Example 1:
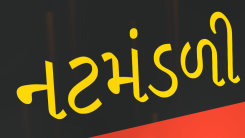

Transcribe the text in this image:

નટમંડળી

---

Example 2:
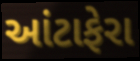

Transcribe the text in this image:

આંટાફેરા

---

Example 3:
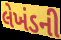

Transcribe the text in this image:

લેખંડની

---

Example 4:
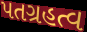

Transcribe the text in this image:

પતગ્રહત્વ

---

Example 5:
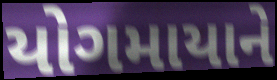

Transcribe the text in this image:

યોગમાયાને